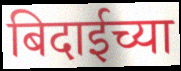
बिदाईच्या